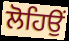
ਲੋਹਿਉਂ